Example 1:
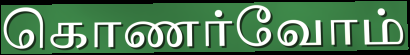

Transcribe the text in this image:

கொணர்வோம்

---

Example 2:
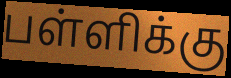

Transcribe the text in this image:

பள்ளிக்கு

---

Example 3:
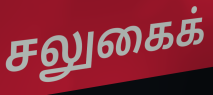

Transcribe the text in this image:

சலுகைக்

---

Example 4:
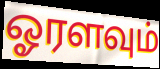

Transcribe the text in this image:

ஓரளவும்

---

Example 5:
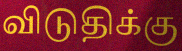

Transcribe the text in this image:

விடுதிக்கு